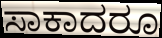
ಸಾಕಾದರೂ